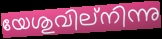
യേശുവില്നിന്നു